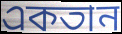
একতান